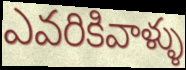
ఎవరికివాళ్ళు